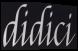
didici